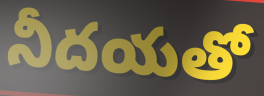
నీదయతో